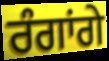
ਰੰਗਾਂਗੇ